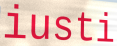
iusti